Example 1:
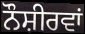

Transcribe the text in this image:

ਨੌਸ਼ੀਰਵਾਂ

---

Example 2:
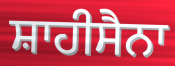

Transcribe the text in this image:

ਸ਼ਾਹੀਸੈਨਾ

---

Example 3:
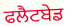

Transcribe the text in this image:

ਫਲੈਟਬੇਡ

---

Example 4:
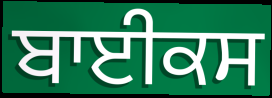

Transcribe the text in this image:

ਬਾਈਕਸ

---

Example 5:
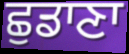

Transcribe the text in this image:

ਛੁਡਾਣਾ